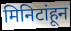
मिनिटांहून